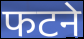
फटने